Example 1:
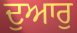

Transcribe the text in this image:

ਦੁਆਰੁ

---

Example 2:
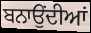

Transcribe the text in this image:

ਬਨਾਉਂਦੀਆਂ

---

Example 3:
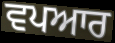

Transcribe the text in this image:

ਵਪਆਰ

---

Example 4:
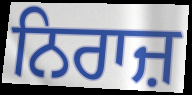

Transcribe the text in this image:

ਨਿਰਾਜ਼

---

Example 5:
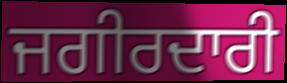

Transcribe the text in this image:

ਜਗੀਰਦਾਰੀ